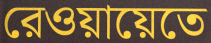
রেওয়ায়েতে